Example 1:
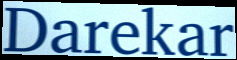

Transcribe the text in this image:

Darekar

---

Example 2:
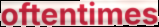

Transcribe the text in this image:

oftentimes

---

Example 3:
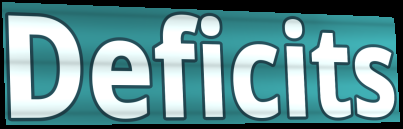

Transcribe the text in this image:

Deficits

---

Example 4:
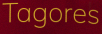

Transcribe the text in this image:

Tagores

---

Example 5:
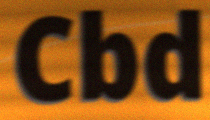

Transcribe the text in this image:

Cbd